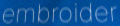
embroider